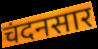
चंदनसार